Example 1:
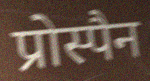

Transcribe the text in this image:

प्रोस्पैन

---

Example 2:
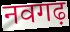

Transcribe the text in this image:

नवगढ़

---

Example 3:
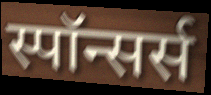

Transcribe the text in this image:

स्पॉन्सर्स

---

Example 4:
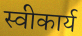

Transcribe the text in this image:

स्वीकार्य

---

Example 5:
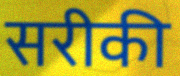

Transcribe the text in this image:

सरीकी